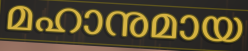
മഹാനുമായ